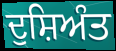
ਦੁਸ਼ਿਅੰਤ